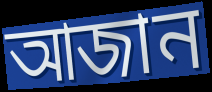
আজান